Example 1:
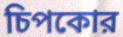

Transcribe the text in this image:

চিপকোর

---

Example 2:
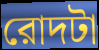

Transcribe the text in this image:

রোদটা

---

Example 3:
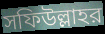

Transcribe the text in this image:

সফিউল্লাহর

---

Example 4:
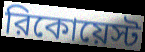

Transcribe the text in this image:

রিকোয়েস্ট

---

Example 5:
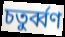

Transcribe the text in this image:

চতুর্ব্বণ